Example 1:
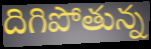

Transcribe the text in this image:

దిగిపోతున్న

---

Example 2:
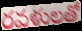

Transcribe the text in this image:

రవళులతో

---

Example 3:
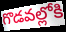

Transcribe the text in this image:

గొడవల్లోకి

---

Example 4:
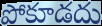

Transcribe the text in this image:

పోకూడదు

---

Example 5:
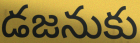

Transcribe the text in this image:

డజనుకు